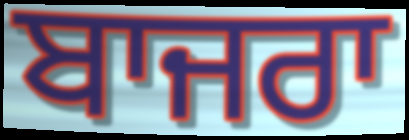
ਬਾਜਰਾ